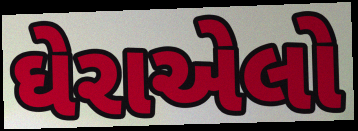
ઘેરાએલો